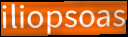
iliopsoas